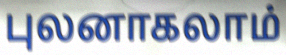
புலனாகலாம்